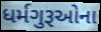
ધર્મગુરૂઓના